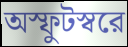
অস্ফুটস্বরে